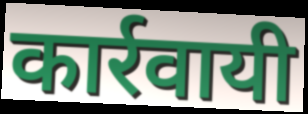
कार्रवायी